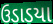
ઉડાડયા